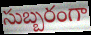
సుబ్బరంగా